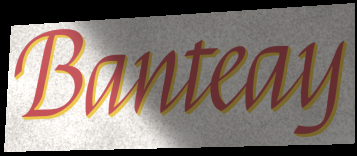
Banteay